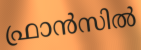
ഫ്രാൻസിൽ